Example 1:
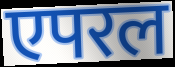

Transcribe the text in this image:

एपरल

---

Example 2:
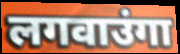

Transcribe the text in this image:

लगवाउंगा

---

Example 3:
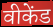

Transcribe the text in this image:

वीकेंड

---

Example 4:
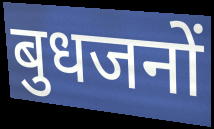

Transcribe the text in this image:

बुधजनों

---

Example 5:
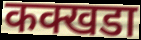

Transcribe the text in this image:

कक्खडा